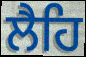
ਲੈਹਿ